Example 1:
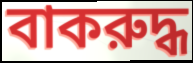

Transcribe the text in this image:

বাকরুদ্ধ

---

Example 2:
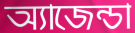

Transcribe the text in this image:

অ্যাজেন্ডা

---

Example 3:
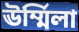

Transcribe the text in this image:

ঊর্ম্মিলা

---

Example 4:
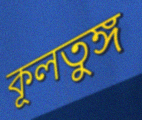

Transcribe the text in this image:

কূলতুঙ্গ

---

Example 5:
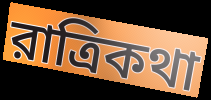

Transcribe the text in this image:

রাত্রিকথা